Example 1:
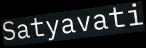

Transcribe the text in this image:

Satyavati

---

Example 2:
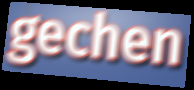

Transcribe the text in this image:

gechen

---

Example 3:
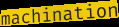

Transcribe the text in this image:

machination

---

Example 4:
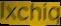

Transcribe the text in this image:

Ixchiq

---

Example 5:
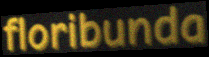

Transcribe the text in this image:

floribunda